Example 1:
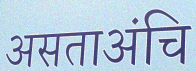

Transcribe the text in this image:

असताअंचि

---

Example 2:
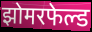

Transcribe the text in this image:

झोमरफेल्ड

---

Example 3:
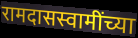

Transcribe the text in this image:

रामदासस्वामींच्या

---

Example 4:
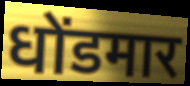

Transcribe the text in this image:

धोंडमार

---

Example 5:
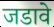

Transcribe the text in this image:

जडावे